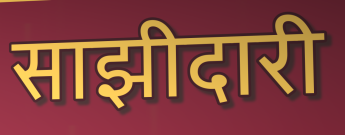
साझीदारी